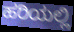
ಹರಿಯಲ್ಲಿ